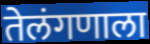
तेलंगणाला